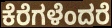
ಕೆರೆಗಳೆಂದರೆ